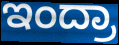
ಇಂದ್ರಾ